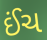
ઈંચ